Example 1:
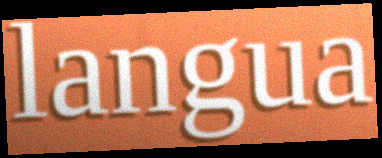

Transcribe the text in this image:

langua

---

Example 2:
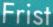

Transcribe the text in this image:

Frist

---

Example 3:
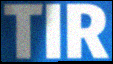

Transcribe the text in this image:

TIR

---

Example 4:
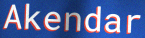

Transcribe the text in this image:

Akendar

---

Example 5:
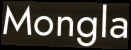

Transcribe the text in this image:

Mongla